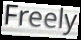
Freely